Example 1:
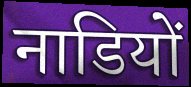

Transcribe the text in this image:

नाडियों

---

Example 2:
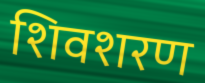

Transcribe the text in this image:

शिवशरण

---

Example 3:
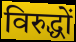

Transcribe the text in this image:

विरुद्धों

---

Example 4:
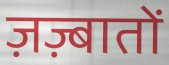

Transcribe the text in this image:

ज़ज़्बातों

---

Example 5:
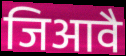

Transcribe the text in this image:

जिआवै